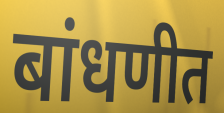
बांधणीत